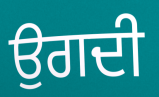
ਉਗਦੀ